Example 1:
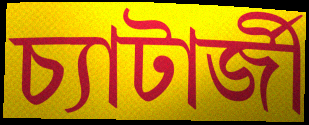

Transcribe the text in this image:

চ্যাটার্জী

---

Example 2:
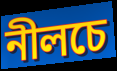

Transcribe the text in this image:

নীলচে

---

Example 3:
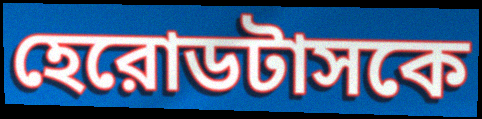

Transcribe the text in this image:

হেরোডটাসকে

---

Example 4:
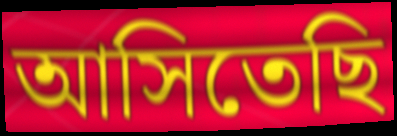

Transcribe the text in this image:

আসিতেছি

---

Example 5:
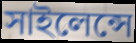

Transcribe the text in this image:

সাইলেন্সে